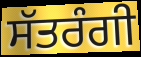
ਸੱਤਰੰਗੀ